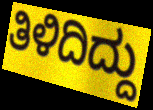
ತಿಳಿದಿದ್ದು